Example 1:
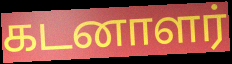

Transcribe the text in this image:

கடனாளர்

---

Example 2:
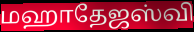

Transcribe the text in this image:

மஹாதேஜஸ்வி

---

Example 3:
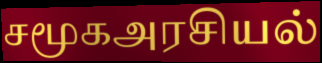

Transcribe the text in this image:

சமூகஅரசியல்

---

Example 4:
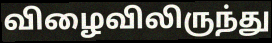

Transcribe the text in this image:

விழைவிலிருந்து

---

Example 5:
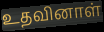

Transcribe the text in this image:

உதவினாள்